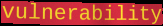
vulnerability